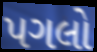
પગલો